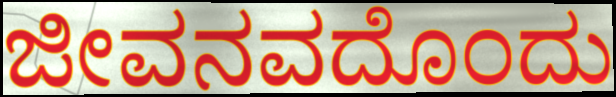
ಜೀವನವದೊಂದು